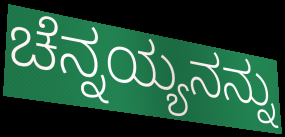
ಚೆನ್ನಯ್ಯನನ್ನು